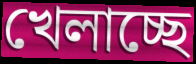
খেলাচ্ছে